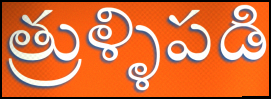
త్రుళ్ళిపడి